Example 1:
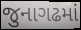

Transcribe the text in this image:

જુનાગઢમાં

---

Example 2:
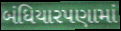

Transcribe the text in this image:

બંધિયારપણામાં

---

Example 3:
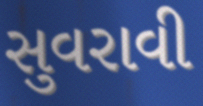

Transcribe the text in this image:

સુવરાવી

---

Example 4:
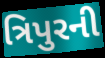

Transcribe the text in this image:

ત્રિપુરની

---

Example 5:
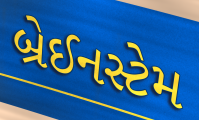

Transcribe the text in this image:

બ્રેઈનસ્ટેમ